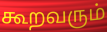
கூறவரும்